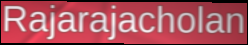
Rajarajacholan